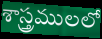
శాస్త్రములలో